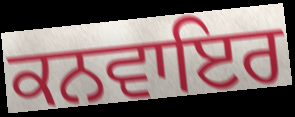
ਕਨਵਾਇਰ